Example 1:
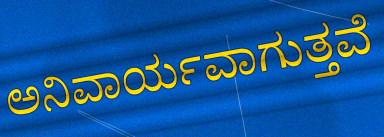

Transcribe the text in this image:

ಅನಿವಾರ್ಯವಾಗುತ್ತವೆ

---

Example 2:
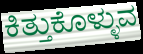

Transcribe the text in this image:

ಕಿತ್ತುಕೊಳ್ಳುವ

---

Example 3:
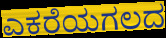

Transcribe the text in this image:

ಎಕರೆಯಗಲದ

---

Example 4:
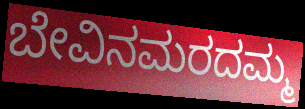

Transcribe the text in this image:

ಬೇವಿನಮರದಮ್ಮ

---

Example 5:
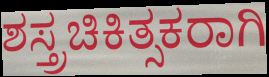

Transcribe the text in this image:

ಶಸ್ತ್ರಚಿಕಿತ್ಸಕರಾಗಿ